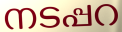
നടപ്പറ